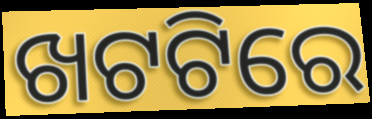
ଖଟଟିରେ